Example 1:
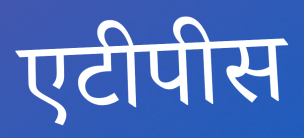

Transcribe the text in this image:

एटीपीस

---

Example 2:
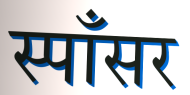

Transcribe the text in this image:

स्पॉंसर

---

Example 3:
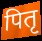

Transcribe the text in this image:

पितृ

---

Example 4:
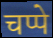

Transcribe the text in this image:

चप्पे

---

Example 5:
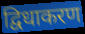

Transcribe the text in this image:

द्विधाकरण